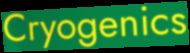
Cryogenics